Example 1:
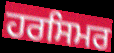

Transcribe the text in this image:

ਹਰਸਿਮਰ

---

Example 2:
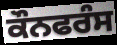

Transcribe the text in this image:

ਕੌਨਫਰੰਸ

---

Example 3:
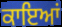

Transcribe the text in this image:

ਕਾਇਆਂ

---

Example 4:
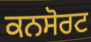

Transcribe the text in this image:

ਕਨਸੋਰਟ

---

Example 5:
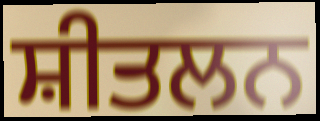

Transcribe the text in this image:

ਸ਼ੀਤਲਨ